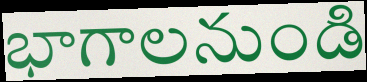
భాగాలనుండి